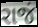
રાજં